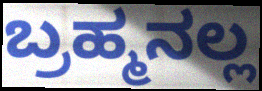
ಬ್ರಹ್ಮನಲ್ಲ